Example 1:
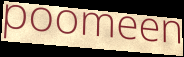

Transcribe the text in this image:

poomeen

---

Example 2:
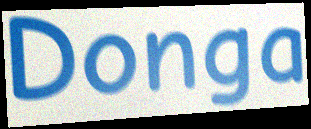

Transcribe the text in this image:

Donga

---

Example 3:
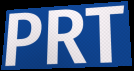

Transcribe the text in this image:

PRT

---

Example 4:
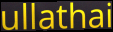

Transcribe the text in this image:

ullathai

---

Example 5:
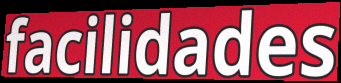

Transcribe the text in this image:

facilidades